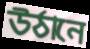
উঠানে